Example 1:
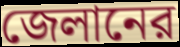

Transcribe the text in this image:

জেলানের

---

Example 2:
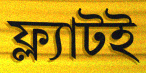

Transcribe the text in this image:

ফ্ল্যাটই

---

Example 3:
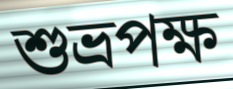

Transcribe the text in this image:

শুভ্রপক্ষ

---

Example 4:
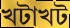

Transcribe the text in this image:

খটাখট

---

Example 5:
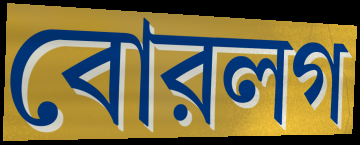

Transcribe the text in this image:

বোরলগ